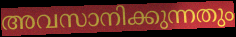
അവസാനിക്കുന്നതും